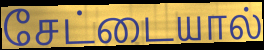
சேட்டையால்